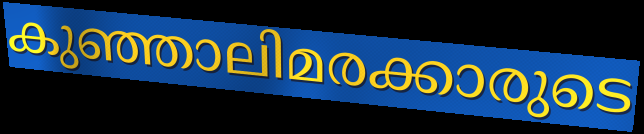
കുഞ്ഞാലിമരക്കാരുടെ